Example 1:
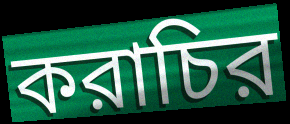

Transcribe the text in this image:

করাচির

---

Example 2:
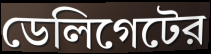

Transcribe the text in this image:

ডেলিগেটের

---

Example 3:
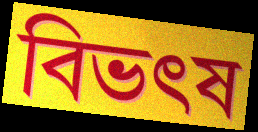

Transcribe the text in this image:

বিভৎষ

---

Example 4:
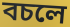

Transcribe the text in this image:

বচলে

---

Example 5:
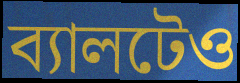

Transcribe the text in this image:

ব্যালটেও